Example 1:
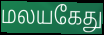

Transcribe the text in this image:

மலயகேது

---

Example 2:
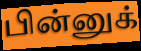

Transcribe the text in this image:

பின்னுக்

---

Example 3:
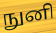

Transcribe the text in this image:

நுனி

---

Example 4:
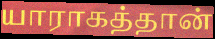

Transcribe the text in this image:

யாராகத்தான்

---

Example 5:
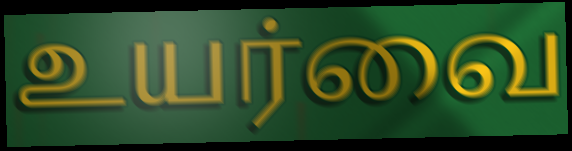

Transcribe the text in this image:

உயர்வை